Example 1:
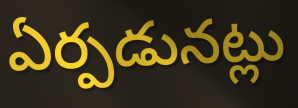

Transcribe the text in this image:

ఏర్పడునట్లు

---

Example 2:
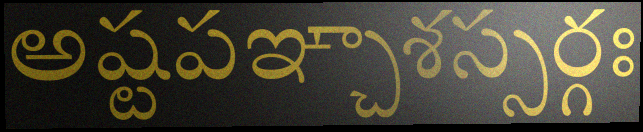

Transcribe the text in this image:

అష్టపఞ్చాశస్సర్గః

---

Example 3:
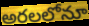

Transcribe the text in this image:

అరలలోనూ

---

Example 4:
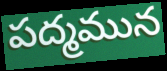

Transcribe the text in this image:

పద్మమున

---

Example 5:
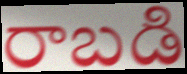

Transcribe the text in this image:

రాబడి